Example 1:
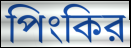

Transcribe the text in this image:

পিংকির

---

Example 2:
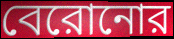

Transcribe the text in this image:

বেরোনোর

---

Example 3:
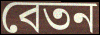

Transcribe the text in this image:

বেতন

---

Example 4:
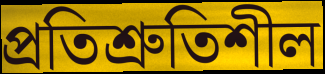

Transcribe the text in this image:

প্রতিশ্রুতিশীল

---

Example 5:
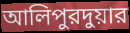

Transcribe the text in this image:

আলিপুরদুয়ার